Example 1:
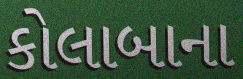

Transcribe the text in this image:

કોલાબાના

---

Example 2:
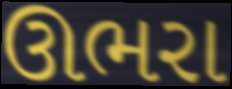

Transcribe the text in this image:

ઊભરા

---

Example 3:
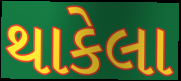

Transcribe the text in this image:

થાકેલા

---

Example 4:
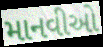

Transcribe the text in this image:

માનવીઓ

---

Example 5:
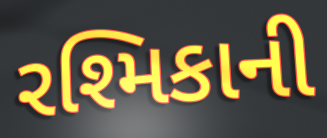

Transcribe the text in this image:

રશ્મિકાની